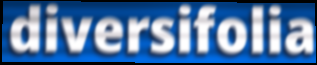
diversifolia